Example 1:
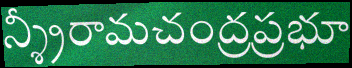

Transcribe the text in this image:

న్శ్రీరామచంద్రప్రభూ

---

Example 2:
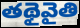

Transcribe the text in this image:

తథైవైతి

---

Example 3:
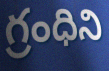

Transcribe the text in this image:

గ్రంధిని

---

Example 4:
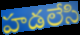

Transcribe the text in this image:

హడలేసి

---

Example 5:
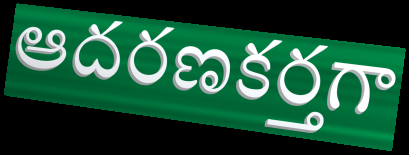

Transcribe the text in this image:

ఆదరణకర్తగా